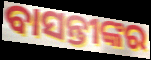
ବାସନ୍ତୀଙ୍କର